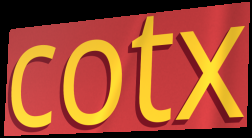
cotx